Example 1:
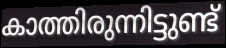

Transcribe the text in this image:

കാത്തിരുന്നിട്ടുണ്ട്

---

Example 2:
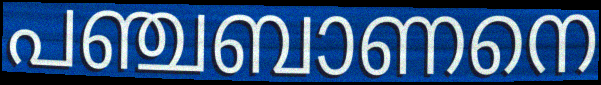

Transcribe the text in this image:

പഞ്ചബാണനെ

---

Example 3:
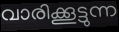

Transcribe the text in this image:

വാരിക്കൂട്ടുന്ന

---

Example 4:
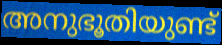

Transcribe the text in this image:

അനുഭൂതിയുണ്ട്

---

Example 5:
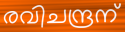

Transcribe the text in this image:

രവിചന്ദ്രന്